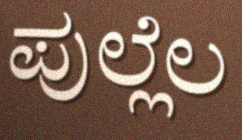
ಪುಲ್ಲೆಲ